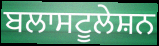
ਬਲਾਸਟੂਲੇਸ਼ਨ